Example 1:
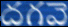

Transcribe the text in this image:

దగవె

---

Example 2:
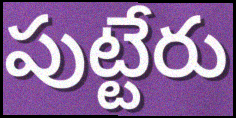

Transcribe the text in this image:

పుట్టేరు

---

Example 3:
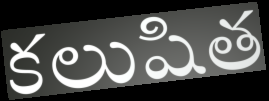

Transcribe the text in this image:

కలుషిత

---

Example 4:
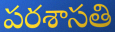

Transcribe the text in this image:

పరశాసతి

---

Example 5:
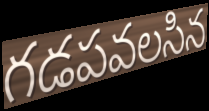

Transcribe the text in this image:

గడపవలసిన